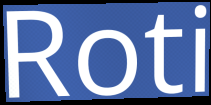
Roti